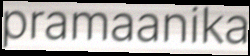
pramaanika